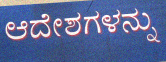
ಆದೇಶಗಳನ್ನು